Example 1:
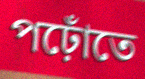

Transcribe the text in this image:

পঢ়োঁতে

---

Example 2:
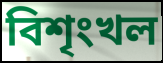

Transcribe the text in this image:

বিশৃংখল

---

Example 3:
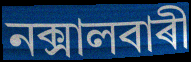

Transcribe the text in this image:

নক্সালবাৰী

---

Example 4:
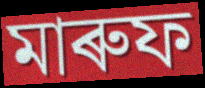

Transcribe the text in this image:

মাৰুফ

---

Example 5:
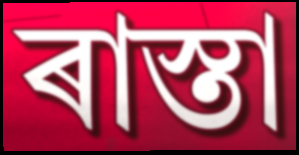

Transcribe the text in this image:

ৰাস্তা